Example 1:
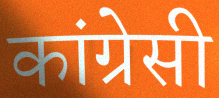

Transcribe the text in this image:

कांग्रेसी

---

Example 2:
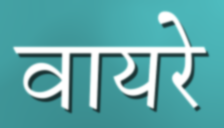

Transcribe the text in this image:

वायरे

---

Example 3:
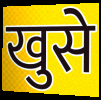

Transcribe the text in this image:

खुसे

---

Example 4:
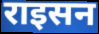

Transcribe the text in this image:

राइसन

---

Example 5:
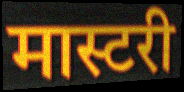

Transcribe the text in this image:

मास्टरी